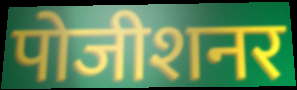
पोजीशनर